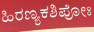
ಹಿರಣ್ಯಕಶಿಪೋಃ